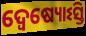
ଦ୍ୱେଷ୍ୟୋଽସ୍ତି